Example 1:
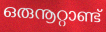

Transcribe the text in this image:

ഒരുനൂറ്റാണ്ട്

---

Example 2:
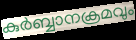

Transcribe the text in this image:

കുർബ്ബാനക്രമവും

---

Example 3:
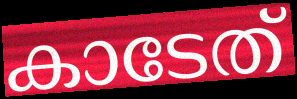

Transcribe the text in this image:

കാടേത്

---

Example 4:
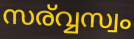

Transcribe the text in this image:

സര്വ്വസ്വം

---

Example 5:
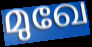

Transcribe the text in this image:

മുഖേ